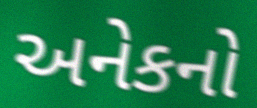
અનેકનો